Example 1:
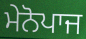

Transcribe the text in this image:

ਮੇਨੋਪਾਜ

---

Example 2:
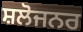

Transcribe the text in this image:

ਸ਼ਲੋਜਨਰ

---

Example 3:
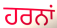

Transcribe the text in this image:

ਹਰਨਾਂ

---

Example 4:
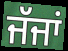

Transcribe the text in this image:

ਜੱਜਾਂ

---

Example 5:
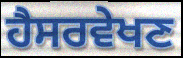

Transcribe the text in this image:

ਹੈਸਰਵੇਖਣ